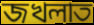
জখলাত